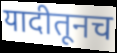
यादीतूनच